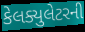
કેલક્યુલેટરની